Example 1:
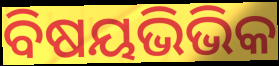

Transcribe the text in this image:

ବିଷୟଭିଭିକ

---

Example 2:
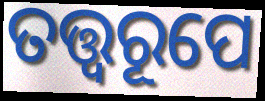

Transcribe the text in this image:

ତତ୍ତ୍ୱରୂପେ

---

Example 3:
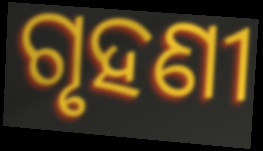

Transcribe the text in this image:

ଗୃହଣୀ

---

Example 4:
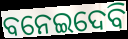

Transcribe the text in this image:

ବନେଇଦେବି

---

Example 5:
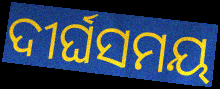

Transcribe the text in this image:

ଦୀର୍ଘସମୟ